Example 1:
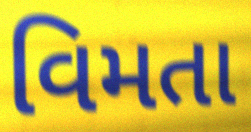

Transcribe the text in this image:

વિમતા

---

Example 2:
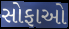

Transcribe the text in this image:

સોફાઓ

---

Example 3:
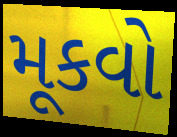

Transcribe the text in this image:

મૂકવો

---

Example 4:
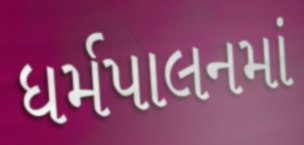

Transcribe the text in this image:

ધર્મપાલનમાં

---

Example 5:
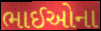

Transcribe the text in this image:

ભાઈઓના